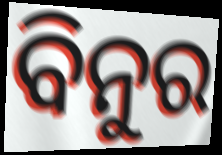
ବିନୁର